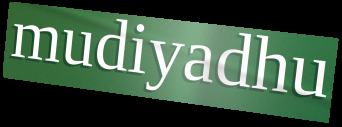
mudiyadhu